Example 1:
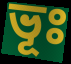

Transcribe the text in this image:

ভূঃ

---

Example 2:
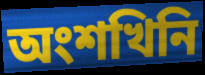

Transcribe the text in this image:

অংশখিনি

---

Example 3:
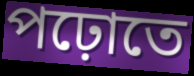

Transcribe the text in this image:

পঢ়োতে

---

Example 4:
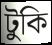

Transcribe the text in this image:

টুকি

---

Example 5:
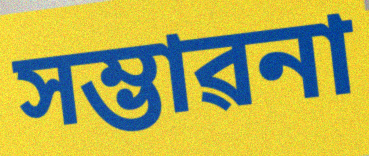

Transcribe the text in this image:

সম্ভাৱনা